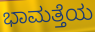
ಭಾಮತ್ತೆಯ